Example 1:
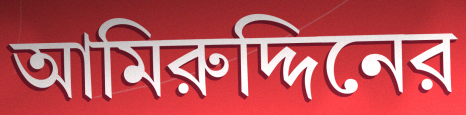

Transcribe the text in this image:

আমিরুদ্দিনের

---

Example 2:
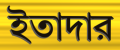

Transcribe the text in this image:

ইতাদার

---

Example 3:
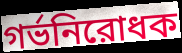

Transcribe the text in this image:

গর্ভনিরোধক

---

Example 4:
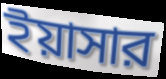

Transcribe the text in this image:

ইয়াসার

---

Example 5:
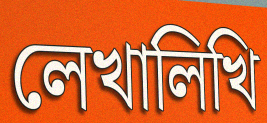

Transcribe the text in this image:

লেখালিখি